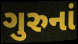
ગુરુનાં